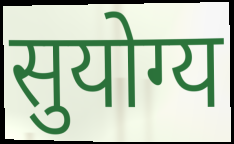
सुयोग्य